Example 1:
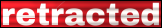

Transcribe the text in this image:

retracted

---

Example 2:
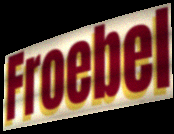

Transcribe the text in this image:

Froebel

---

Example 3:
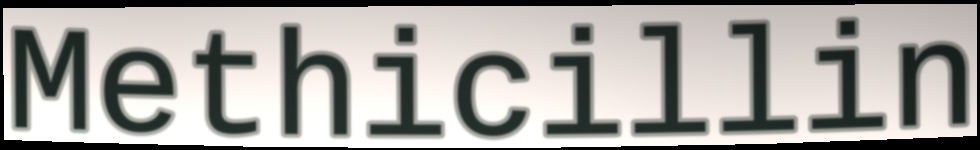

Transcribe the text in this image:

Methicillin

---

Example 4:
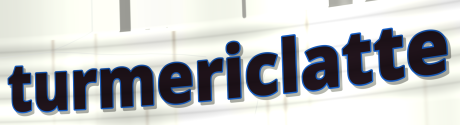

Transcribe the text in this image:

turmericlatte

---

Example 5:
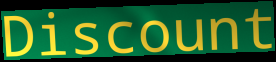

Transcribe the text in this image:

Discount